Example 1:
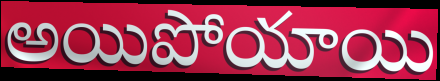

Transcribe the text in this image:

అయిపోయాయి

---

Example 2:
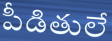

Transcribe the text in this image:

పీడితులే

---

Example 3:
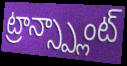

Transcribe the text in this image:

ట్రాన్స్ప్లాంట్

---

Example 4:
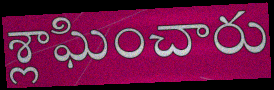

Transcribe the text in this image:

శ్లాఘించారు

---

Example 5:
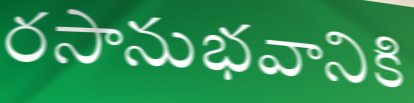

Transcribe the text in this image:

రసానుభవానికి